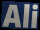
Ali